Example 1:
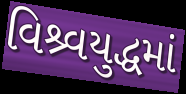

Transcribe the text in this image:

વિશ્ર્વયુદ્ધમાં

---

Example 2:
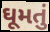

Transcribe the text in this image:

ઘૂમતું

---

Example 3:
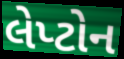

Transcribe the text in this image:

લેપ્ટોન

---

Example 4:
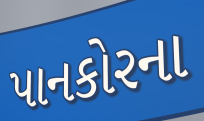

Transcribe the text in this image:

પાનકોરના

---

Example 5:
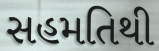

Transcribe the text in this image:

સહમતિથી